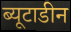
ब्यूटाडीन